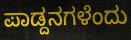
ಪಾಡ್ದನಗಳೆಂದು